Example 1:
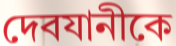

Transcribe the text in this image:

দেবযানীকে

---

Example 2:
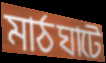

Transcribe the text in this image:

মাঠঘাটে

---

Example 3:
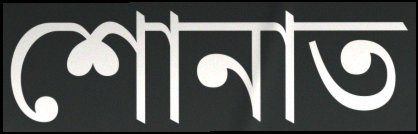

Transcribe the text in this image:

শোনাত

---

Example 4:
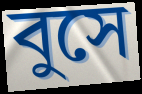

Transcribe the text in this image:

বুসে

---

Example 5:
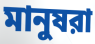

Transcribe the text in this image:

মানুষরা